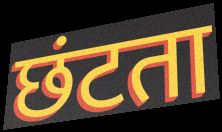
छंटता